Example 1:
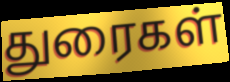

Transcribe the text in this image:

துரைகள்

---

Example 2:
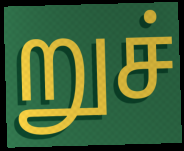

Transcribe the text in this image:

றுச்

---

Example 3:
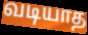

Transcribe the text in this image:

வடியாத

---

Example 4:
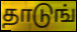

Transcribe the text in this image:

தாடுங்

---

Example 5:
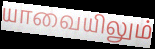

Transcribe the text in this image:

யாவையிலும்